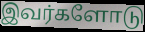
இவர்களோடு